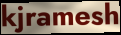
kjramesh